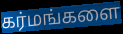
கர்மங்களை